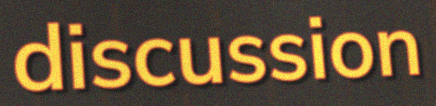
discussion